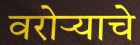
वरोऱ्याचे